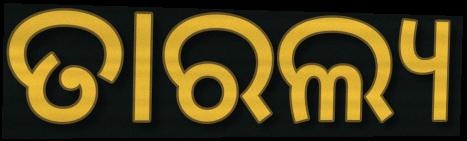
ତାରଲ୍ୟ